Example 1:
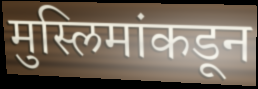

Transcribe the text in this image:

मुस्लिमांकडून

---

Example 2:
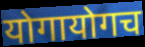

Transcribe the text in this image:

योगायोगच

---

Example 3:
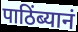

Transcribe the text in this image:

पाठिंब्यानं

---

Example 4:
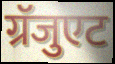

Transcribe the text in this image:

ग्रॅजुएट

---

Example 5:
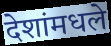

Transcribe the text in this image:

देशांमधले